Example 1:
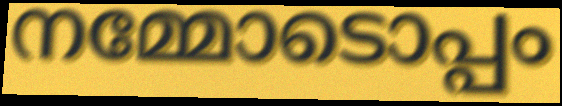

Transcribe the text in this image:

നമ്മോടൊപ്പം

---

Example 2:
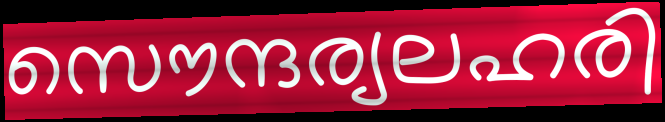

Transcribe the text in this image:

സൌന്ദര്യലഹരി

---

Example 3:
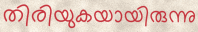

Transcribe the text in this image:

തിരിയുകയായിരുന്നു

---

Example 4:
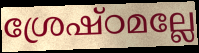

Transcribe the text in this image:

ശ്രേഷ്ഠമല്ലേ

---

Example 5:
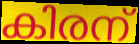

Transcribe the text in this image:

കിരന്